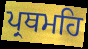
ਪ੍ਰਥਮਹਿ